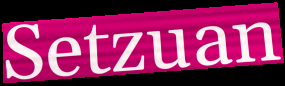
Setzuan